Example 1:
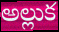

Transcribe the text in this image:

అల్లుక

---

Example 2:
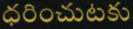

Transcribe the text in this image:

ధరించుటకు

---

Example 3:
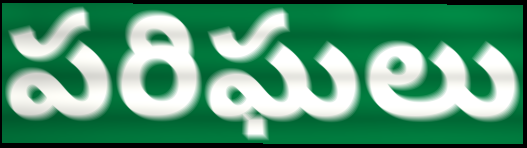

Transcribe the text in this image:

పరిఘలు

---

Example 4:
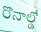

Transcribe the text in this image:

రొనాల్డో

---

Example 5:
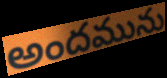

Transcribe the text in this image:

అందమును